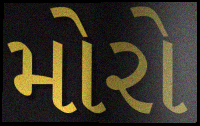
મોરો